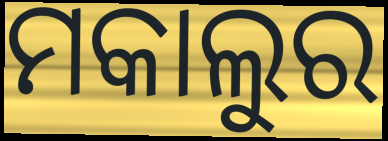
ମକାଲୁର